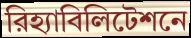
রিহ্যাবিলিটেশনে